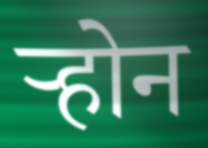
र्‍होन